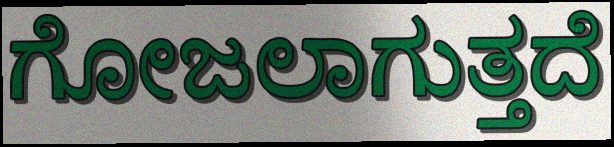
ಗೋಜಲಾಗುತ್ತದೆ